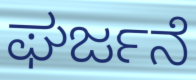
ಘರ್ಜನೆ